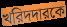
খরিদদারকে